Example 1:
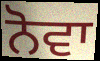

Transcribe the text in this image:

ਨੋਵਾ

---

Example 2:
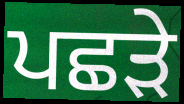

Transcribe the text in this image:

ਪਛੜੇ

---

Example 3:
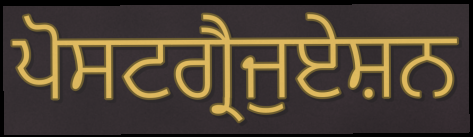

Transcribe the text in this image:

ਪੋਸਟਗ੍ਰੈਜੁਏਸ਼ਨ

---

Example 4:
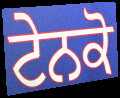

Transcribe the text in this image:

ਟੇਨਕੋ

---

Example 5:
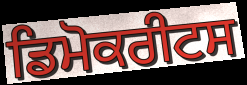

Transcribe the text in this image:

ਡਿਮੋਕਰੀਟਸ